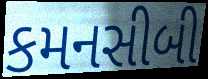
કમનસીબી